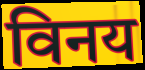
विनय